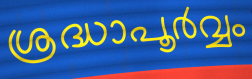
ശ്രദ്ധാപൂർവ്വം